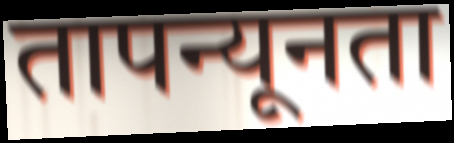
तापन्यूनता